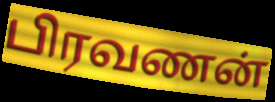
பிரவணன்